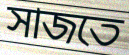
সাজতে